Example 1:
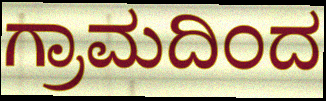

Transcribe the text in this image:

ಗ್ರಾಮದಿಂದ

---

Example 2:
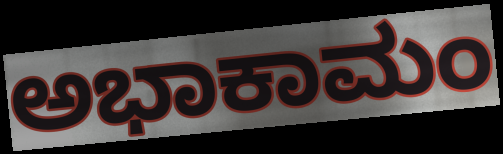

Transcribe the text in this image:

ಅಭಾಕಾಮಂ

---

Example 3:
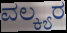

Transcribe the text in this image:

ವಲ್ಕ್ಯರ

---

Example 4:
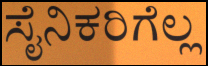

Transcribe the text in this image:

ಸೈನಿಕರಿಗೆಲ್ಲ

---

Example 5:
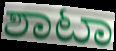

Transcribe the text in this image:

ಶಾಟಾ